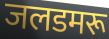
जलडमरू